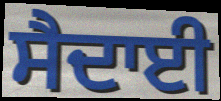
ਸੈਦਾਈ